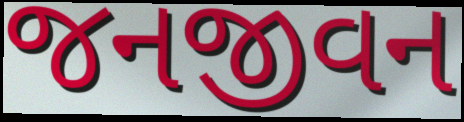
જનજીવન